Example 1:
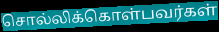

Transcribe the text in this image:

சொல்லிக்கொள்பவர்கள்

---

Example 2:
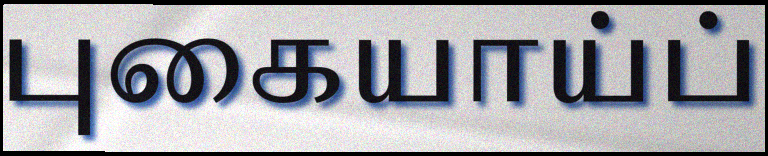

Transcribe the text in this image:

புகையாய்ப்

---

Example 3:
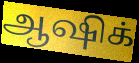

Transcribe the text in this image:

ஆஷிக்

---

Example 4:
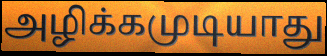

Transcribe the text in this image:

அழிக்கமுடியாது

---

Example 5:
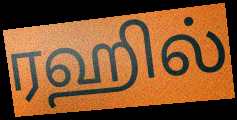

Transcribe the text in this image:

ரஹில்